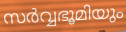
സർവ്വഭൂമിയും